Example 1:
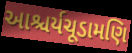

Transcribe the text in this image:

આશ્ચર્યચૂડામણિ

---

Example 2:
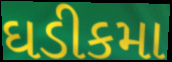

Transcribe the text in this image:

ઘડીકમા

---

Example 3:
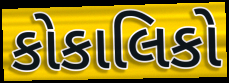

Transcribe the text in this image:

કોકાલિકો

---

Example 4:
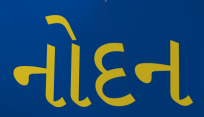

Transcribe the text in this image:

નોદન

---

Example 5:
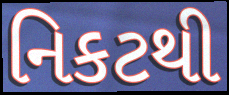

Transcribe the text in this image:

નિકટથી